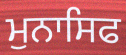
ਮੁਨਾਸਿਫ